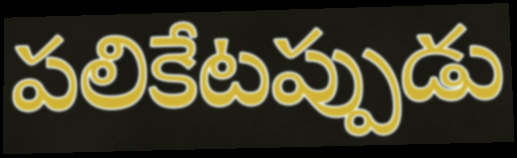
పలికేటప్పుడు